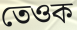
তেওক